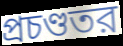
প্রচণ্ডতর